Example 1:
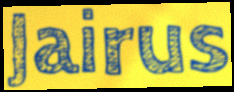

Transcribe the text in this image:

Jairus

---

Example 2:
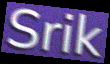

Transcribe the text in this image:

Srik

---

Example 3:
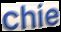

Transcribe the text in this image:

chie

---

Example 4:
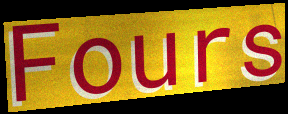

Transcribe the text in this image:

Fours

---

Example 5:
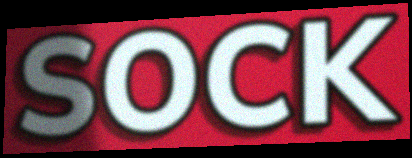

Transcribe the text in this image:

SOCK